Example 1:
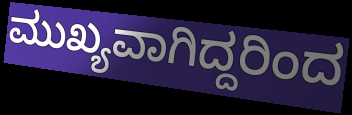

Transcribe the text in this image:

ಮುಖ್ಯವಾಗಿದ್ದರಿಂದ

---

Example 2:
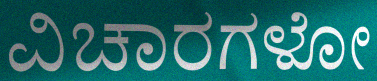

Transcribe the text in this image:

ವಿಚಾರಗಳೋ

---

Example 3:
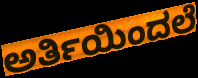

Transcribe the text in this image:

ಅರ್ತಿಯಿಂದಲೆ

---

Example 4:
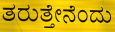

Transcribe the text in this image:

ತರುತ್ತೇನೆಂದು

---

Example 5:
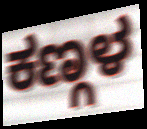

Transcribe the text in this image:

ಕಣ್ಗಳ